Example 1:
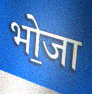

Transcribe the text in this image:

भो॒जा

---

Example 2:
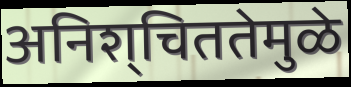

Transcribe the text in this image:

अनिश्चिततेमुळे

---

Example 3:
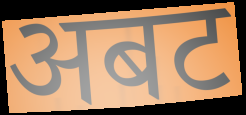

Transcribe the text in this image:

अबट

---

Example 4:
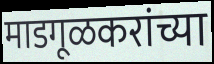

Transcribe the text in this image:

माडगूळकरांच्या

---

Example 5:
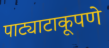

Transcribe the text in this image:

पाट्याटाकूपणे